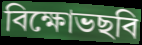
বিক্ষোভছবি